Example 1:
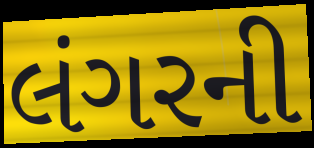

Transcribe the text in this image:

લંગરની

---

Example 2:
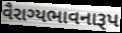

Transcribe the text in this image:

વૈરાગ્યભાવનારૂપ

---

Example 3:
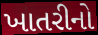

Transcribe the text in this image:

ખાતરીનો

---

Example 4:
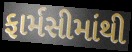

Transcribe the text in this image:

ફાર્મસીમાંથી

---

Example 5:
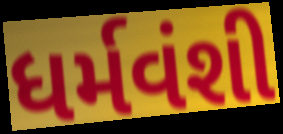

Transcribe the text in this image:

ધર્મવંશી